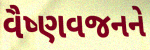
વૈષ્ણવજનને